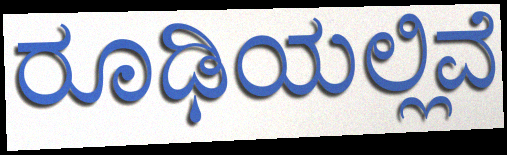
ರೂಢಿಯಲ್ಲಿವೆ